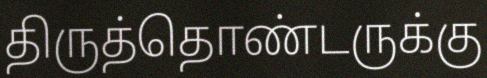
திருத்தொண்டருக்கு